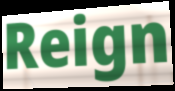
Reign